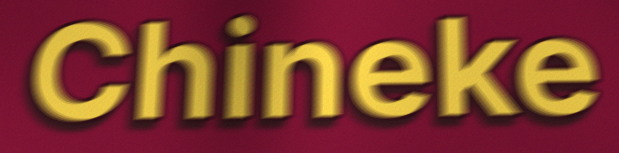
Chineke